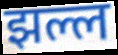
झल्ल